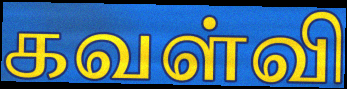
கவள்வி